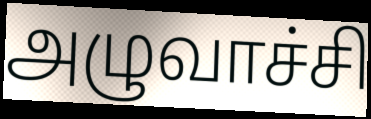
அழுவாச்சி